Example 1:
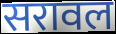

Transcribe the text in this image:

सरावल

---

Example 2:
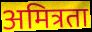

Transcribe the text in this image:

अमित्रता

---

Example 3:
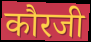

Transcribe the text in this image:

कौरजी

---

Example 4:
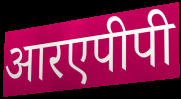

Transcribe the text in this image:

आरएपीपी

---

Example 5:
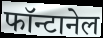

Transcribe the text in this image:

फॉन्टानेल